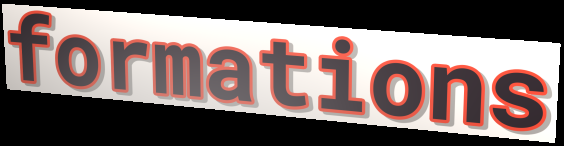
formations